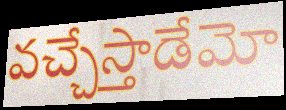
వచ్చేస్తాడేమో